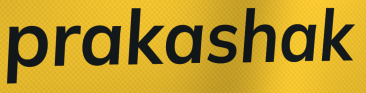
prakashak